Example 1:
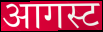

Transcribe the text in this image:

आगस्ट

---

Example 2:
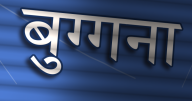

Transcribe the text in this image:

बुग्गना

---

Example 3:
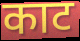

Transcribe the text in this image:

काट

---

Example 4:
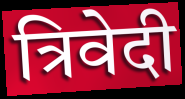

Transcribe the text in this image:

त्रिवेदी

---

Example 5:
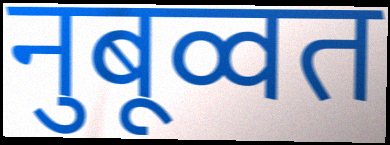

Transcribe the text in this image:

नुबूव्वत